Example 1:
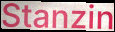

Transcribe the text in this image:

Stanzin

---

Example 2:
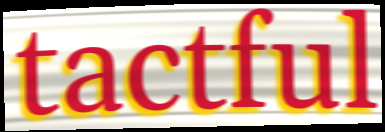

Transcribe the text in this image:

tactful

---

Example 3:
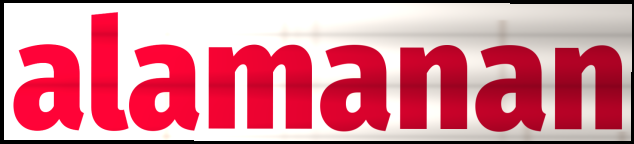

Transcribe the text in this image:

alamanan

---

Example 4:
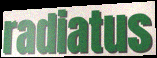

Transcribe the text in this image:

radiatus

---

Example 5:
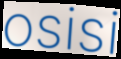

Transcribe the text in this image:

osisi